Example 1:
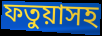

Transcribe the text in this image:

ফতুয়াসহ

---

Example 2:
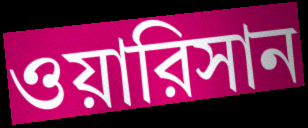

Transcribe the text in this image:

ওয়ারিসান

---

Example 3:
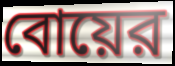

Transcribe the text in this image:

বোয়ের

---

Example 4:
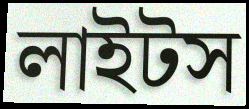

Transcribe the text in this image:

লাইটস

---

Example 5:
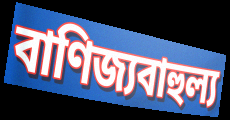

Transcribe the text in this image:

বাণিজ্যবাহুল্য